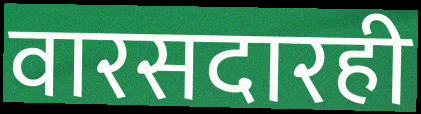
वारसदारही